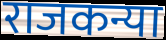
राजकन्या